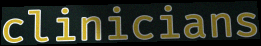
clinicians